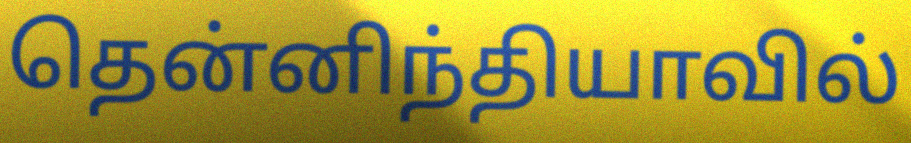
தென்னிந்தியாவில்